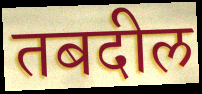
तबदील